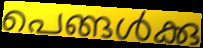
പെങ്ങൾക്കു